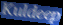
Kuldeep